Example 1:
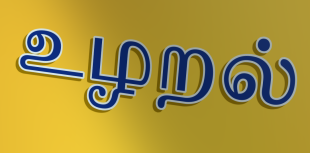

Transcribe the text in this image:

உழறல்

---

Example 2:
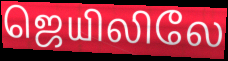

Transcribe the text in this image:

ஜெயிலிலே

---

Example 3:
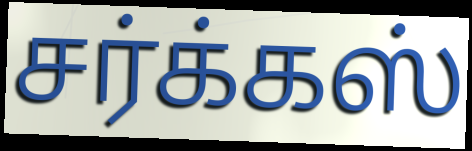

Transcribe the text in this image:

சர்க்கஸ்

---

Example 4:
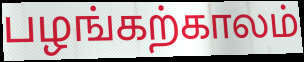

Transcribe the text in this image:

பழங்கற்காலம்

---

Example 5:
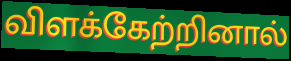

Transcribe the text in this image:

விளக்கேற்றினால்